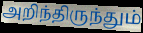
அறிந்திருந்தும்